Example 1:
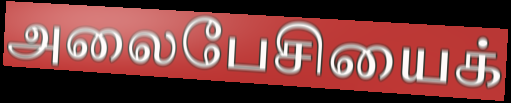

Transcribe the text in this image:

அலைபேசியைக்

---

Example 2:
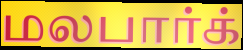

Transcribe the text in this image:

மலபார்க்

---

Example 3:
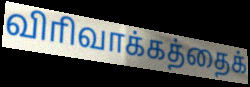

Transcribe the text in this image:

விரிவாக்கத்தைக்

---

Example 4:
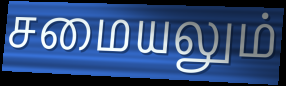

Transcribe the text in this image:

சமையலும்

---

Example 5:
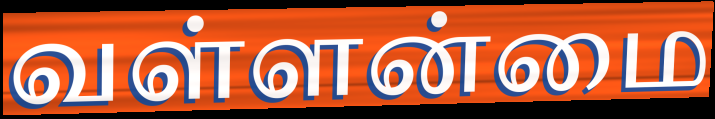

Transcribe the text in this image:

வள்ளன்மை